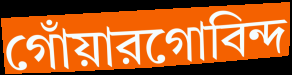
গোঁয়ারগোবিন্দ